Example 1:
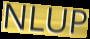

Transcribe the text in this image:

NLUP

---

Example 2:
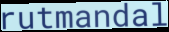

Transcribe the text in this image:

rutmandal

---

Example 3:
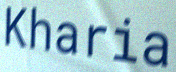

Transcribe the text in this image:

Kharia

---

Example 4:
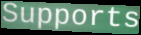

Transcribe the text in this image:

Supports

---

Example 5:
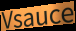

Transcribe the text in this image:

Vsauce